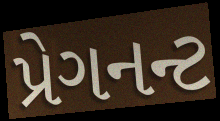
પ્રેગનન્ટ